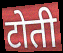
टोती